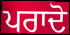
ਪਰਾਦੋ